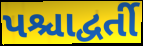
પશ્ચાદ્વર્તી